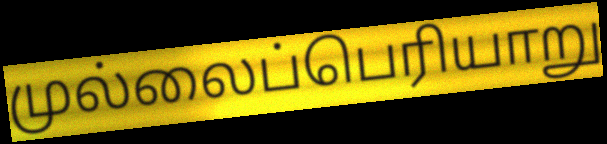
முல்லைப்பெரியாறு